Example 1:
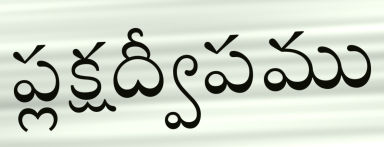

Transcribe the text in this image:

ప్లక్షద్వీపము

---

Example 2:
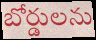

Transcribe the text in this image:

బోర్డులను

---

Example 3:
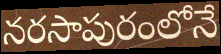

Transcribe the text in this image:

నరసాపురంలోనే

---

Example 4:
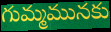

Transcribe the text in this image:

గుమ్మమునకు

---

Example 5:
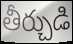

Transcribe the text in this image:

తీర్చుడి